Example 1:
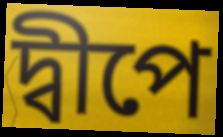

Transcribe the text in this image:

দ্বীপে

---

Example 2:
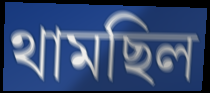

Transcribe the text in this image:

থামছিল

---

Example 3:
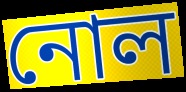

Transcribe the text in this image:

নোল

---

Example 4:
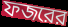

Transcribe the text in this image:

ফজরের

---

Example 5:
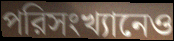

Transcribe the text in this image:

পরিসংখ্যানেও